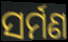
ସର୍ମଣ